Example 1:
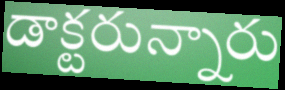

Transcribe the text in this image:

డాక్టరున్నారు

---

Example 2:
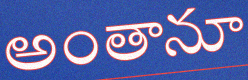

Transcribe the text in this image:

అంతానూ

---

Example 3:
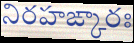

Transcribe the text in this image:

నిరహఙ్కారః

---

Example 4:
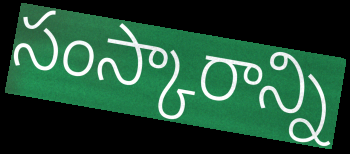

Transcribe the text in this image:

సంస్కారాన్ని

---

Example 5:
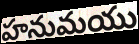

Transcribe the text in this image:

హనుమయు